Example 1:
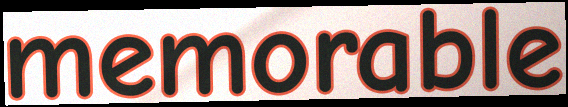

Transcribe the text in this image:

memorable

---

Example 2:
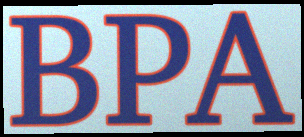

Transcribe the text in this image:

BPA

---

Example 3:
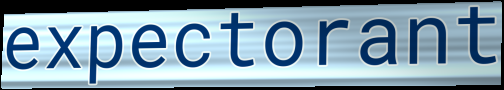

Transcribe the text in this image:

expectorant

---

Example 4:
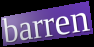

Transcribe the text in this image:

barren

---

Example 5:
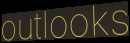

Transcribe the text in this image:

outlooks